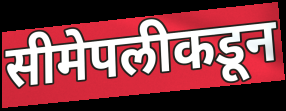
सीमेपलीकडून